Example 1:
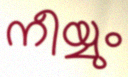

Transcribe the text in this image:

നീയ്യും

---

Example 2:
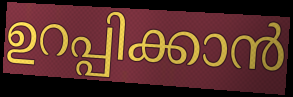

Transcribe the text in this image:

ഉറപ്പിക്കാൻ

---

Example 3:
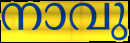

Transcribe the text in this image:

നാവു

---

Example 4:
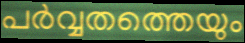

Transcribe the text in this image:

പർവ്വതത്തെയും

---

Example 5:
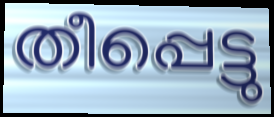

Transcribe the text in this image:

തീപ്പെട്ടു